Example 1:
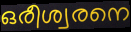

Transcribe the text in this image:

ഒരീശ്വരനെ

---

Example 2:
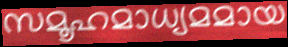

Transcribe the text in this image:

സമൂഹമാധ്യമമായ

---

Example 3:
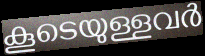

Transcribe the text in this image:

കൂടെയുള്ളവർ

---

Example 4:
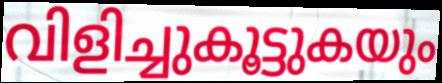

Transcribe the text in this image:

വിളിച്ചുകൂട്ടുകയും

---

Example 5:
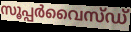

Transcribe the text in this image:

സൂപ്പർവൈസ്ഡ്